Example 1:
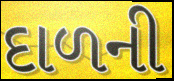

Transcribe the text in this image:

દાળની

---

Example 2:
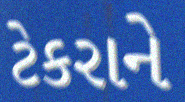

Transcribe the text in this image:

ટેકરાને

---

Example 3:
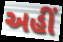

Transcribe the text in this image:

અહીઁ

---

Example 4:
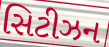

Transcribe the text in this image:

સિટીઝન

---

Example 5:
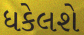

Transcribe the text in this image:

ધકેલશે